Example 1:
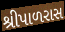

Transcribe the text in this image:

શ્રીપાળરાસ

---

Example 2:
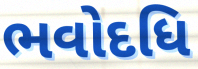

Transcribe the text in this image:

ભવોદધિ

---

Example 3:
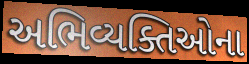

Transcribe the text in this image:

અભિવ્યક્તિઓના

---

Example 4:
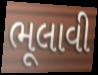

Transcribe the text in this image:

ભૂલાવી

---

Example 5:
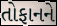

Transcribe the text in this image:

તોફાનને